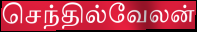
செந்தில்வேலன்